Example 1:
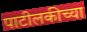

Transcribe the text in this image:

पाटीलकीच्या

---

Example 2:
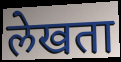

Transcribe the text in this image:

लेखता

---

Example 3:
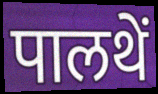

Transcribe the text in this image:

पालथें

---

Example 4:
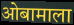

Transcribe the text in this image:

ओबामाला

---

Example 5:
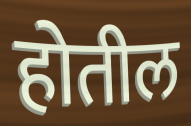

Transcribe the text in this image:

होतील